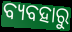
ବ୍ୟବହାରୁ